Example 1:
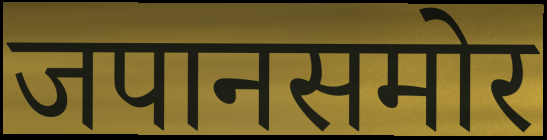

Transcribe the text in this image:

जपानसमोर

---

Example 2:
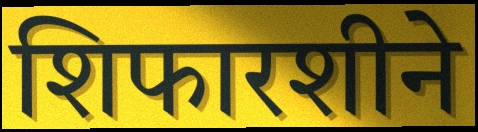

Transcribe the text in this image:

शिफारशीने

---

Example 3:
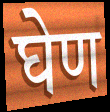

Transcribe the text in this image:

घेण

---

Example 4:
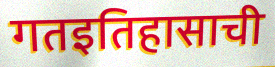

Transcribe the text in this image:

गतइतिहासाची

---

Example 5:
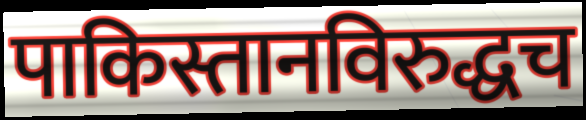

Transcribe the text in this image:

पाकिस्तानविरुद्धच